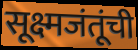
सूक्ष्मजंतूंची